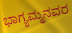
ಭಾಗ್ಯಮ್ಮನವರ